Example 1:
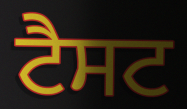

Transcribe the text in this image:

ਟੈਸਟ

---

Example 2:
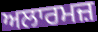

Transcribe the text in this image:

ਅਲਾਰਮਜ਼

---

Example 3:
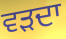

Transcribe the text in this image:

ਵੜਦਾ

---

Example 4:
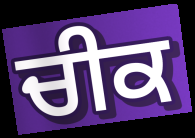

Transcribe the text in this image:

ਚੀਕ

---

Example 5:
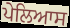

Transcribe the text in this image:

ਪੇਲਿਆਸ